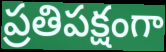
ప్రతిపక్షంగా